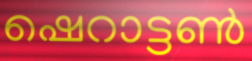
ഷെറാട്ടൺ